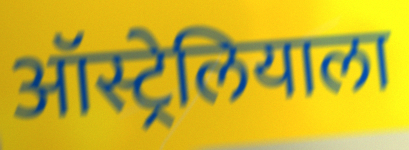
ऑस्ट्रेलियाला